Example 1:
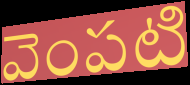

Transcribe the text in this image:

వెంపటి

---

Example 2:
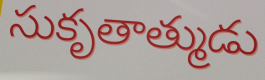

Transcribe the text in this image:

సుకృతాత్ముడు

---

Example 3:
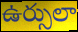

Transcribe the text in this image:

ఉర్సులా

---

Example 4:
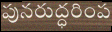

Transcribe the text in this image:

పునరుద్ధరింప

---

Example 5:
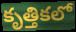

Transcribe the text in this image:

కృత్తికలో